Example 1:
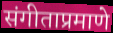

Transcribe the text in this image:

संगीताप्रमाणे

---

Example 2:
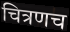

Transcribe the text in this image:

चित्रणच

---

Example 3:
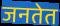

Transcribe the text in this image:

जनतेत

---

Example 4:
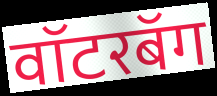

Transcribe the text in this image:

वॉटरबॅग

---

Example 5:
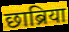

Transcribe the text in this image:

छाब्रिया